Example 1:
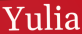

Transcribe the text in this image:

Yulia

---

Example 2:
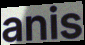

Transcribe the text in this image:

anis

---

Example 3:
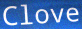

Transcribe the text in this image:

Clove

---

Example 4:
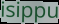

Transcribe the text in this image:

isippu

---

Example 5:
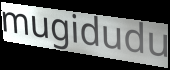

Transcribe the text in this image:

mugidudu